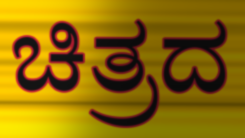
ಚಿತ್ರದ